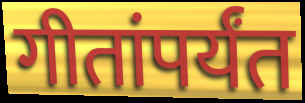
गीतांपर्यंत